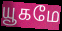
யூகமே